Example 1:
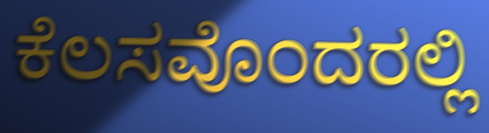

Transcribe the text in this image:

ಕೆಲಸವೊಂದರಲ್ಲಿ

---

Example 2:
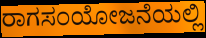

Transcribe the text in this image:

ರಾಗಸಂಯೋಜನೆಯಲ್ಲಿ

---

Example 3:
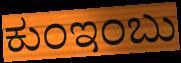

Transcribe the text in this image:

ಕುಂಇಂಬು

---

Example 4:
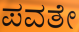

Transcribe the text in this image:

ಪವತೇ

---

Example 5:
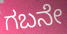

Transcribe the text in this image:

ಗಬನೇ